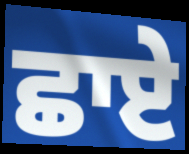
ਛਾਏ